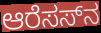
ಆರೆಸಸ್‌ನ